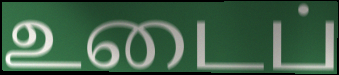
உடைப்